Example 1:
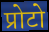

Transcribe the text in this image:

प्रोटो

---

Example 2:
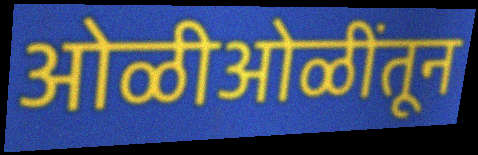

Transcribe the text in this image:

ओळीओळींतून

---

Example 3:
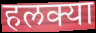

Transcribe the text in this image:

हलक्या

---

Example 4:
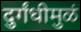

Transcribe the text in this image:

दुर्गंधीमुळं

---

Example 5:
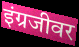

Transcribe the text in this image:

इंग्रजीवर